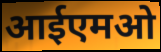
आईएमओ